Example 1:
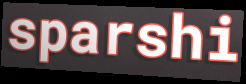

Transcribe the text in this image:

sparshi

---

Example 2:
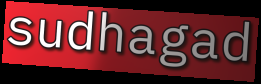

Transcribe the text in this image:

sudhagad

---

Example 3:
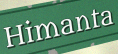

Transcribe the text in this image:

Himanta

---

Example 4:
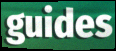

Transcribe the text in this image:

guides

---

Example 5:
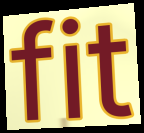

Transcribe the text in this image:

fit